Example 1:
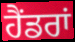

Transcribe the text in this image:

ਹੈਂਡਰਾਂ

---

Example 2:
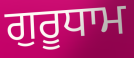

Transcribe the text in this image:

ਗੁਰੂਧਾਮ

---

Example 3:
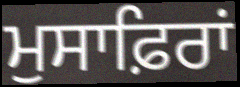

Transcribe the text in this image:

ਮੁਸਾਫ਼ਿਰਾਂ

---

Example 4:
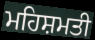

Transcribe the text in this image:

ਮਹਿਸ਼ਮਤੀ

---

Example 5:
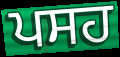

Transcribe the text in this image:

ਪਸਹ